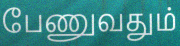
பேணுவதும்